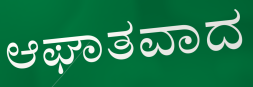
ಆಘಾತವಾದ